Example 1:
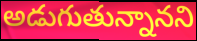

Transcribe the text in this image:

అడుగుతున్నానని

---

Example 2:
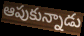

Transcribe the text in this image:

ఆపుకున్నాడు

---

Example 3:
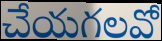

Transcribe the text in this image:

చేయగలవో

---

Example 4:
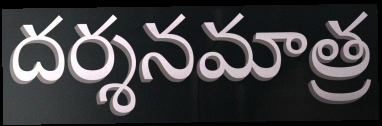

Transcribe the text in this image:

దర్శనమాత్ర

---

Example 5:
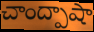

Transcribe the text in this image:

చాంద్పాషా